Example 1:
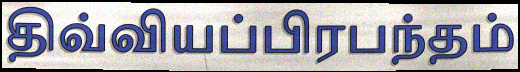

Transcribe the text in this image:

திவ்வியப்பிரபந்தம்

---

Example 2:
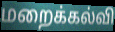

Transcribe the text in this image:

மறைக்கல்வி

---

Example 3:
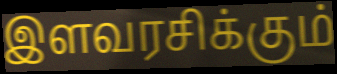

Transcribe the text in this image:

இளவரசிக்கும்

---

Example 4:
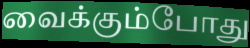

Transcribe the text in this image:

வைக்கும்போது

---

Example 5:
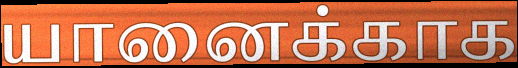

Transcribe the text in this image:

யானைக்காக